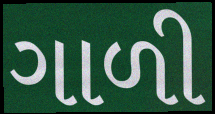
ગાળી